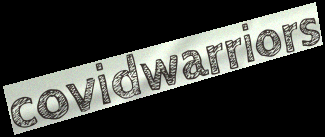
covidwarriors